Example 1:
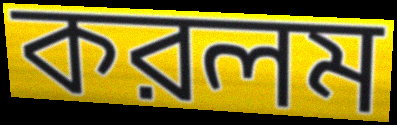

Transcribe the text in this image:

করলম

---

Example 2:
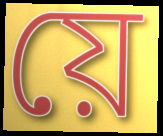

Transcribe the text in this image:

য়ে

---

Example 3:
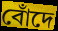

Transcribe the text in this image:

বোঁদে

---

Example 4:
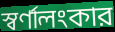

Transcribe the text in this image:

স্বর্ণালংকার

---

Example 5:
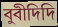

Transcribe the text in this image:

বুবীদিদি